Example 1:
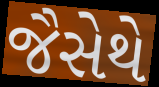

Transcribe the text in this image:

જૈસેથે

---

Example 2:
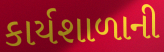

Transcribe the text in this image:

કાર્યશાળાની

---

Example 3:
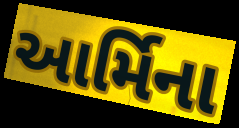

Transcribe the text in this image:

આર્મિના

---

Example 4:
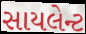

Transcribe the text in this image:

સાયલેન્ટ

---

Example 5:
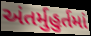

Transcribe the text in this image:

અંતર્મુહુર્તમાં